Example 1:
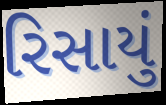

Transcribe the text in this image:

રિસાયું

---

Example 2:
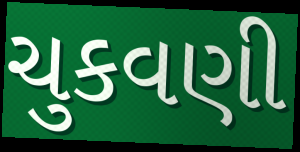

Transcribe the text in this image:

ચુકવણી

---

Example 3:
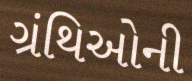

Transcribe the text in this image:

ગ્રંથિઓની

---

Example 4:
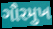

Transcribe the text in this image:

ગૌરમુખ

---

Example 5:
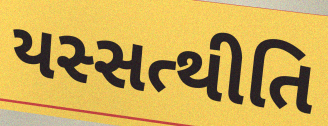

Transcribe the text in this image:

યસ્સત્થીતિ